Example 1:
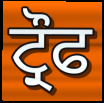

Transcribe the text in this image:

ਟ੍ਰੌਫ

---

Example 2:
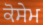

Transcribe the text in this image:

ਕੋਸੇਮ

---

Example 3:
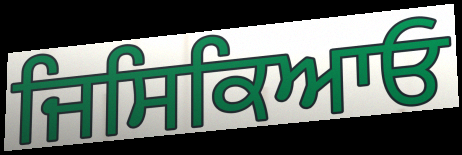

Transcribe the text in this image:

ਜਿਸਿਕਿਆਓ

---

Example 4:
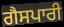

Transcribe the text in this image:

ਗੈਸਪਾਰੀ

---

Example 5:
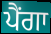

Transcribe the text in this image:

ਪੈਂਗਾ